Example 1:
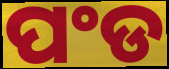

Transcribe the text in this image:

ପଂଡ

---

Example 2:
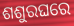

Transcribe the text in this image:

ଶଶୁରଘରେ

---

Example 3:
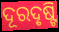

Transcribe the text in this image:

ଦୂରଦୃଷ୍ଟି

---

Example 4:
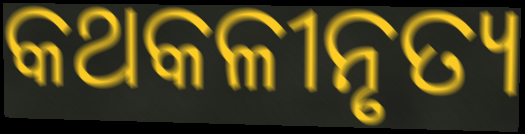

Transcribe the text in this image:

କଥକଳୀନୃତ୍ୟ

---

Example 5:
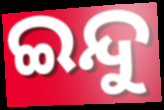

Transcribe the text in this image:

ଇନ୍ଦୁ